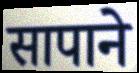
सापाने